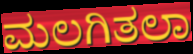
ಮಲಗಿತಲಾ